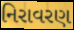
નિરાવરણ